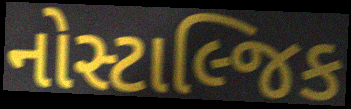
નોસ્ટાલ્જિક